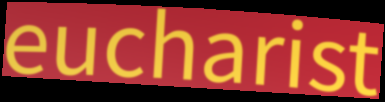
eucharist